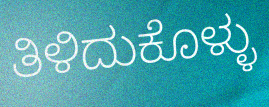
ತಿಳಿದುಕೊಳ್ಳು